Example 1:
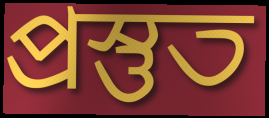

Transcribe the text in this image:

প্ৰস্তুত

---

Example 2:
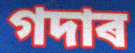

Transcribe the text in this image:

গদাৰ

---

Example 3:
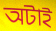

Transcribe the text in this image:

অটাই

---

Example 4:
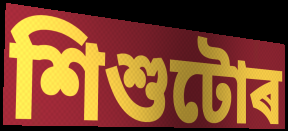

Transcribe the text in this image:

শিশুটোৰ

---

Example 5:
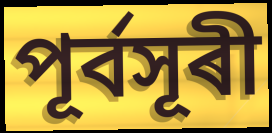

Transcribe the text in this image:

পূৰ্বসূৰী